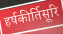
हर्षकीर्तिसूरि